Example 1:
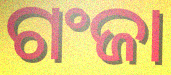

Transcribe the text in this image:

ଗଂଜା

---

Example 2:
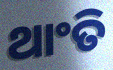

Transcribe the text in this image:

ଥାଂତି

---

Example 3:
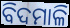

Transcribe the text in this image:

ବିଦମାଳି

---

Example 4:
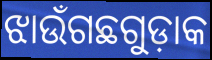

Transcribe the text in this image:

ଝାଉଁଗଛଗୁଡ଼ାକ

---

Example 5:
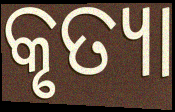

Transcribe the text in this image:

କୃତ୍ୟା